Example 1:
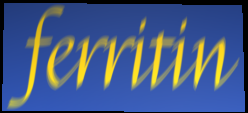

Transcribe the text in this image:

ferritin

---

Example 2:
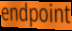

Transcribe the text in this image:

endpoint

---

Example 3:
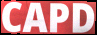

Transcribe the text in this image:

CAPD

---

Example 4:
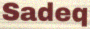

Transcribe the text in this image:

Sadeq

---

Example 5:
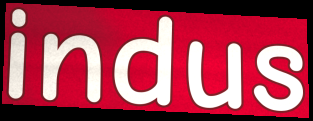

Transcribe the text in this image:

indus